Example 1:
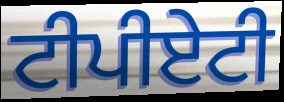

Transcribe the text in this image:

ਟੀਪੀਏਟੀ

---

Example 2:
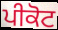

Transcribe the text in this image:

ਪੀਕੋਟ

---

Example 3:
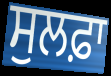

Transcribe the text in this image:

ਸੁਲਫ਼ਾ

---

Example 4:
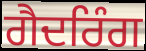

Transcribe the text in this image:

ਗੈਦਰਿੰਗ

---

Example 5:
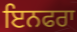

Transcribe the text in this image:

ਇਨਫਰਾ